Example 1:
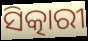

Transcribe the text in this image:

ସିତ୍କାରୀ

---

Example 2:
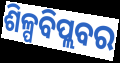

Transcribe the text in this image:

ଶିଳ୍ପବିପ୍ଲବର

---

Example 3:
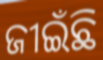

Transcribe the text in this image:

ଜୀଇଁଛି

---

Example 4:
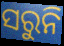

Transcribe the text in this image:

ସରୁନି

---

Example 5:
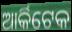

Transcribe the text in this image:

ଆର୍କିଟେକ